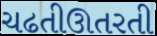
ચઢતીઊતરતી